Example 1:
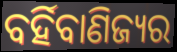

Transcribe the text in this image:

ବର୍ହିବାଣିଜ୍ୟର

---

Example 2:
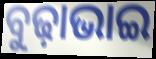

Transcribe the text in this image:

ବୁଢ଼ାଭାଇ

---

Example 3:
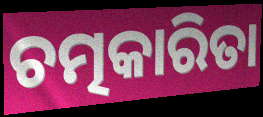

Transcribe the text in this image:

ଚତ୍ମକାରିତା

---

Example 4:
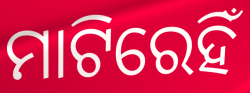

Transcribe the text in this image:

ମାଟିରେହିଁ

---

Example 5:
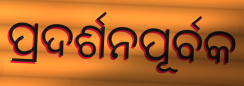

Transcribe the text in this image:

ପ୍ରଦର୍ଶନପୂର୍ବକ